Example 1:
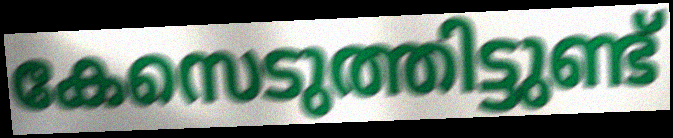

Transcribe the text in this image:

കേസെടുത്തിട്ടുണ്ട്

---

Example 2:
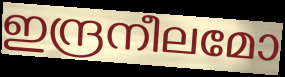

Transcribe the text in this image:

ഇന്ദ്രനീലമോ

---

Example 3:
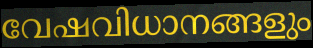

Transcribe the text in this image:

വേഷവിധാനങ്ങളും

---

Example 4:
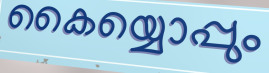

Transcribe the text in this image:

കൈയ്യൊപ്പും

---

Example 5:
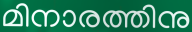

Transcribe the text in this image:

മിനാരത്തിനു